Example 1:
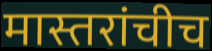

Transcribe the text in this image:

मास्तरांचीच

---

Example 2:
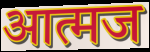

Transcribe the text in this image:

आत्मज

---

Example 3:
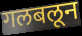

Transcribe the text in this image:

गलबलून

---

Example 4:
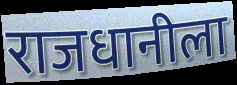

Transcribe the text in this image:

राजधानीला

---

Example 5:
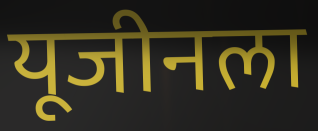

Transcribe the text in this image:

यूजीनला